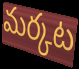
మర్కట